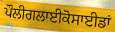
ਪੌਲੀਗਲਾਈਕੋਸਾਈਡਾਂ